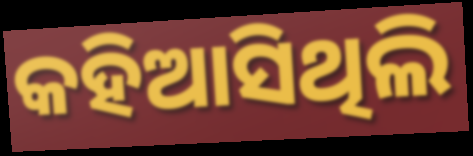
କହିଆସିଥିଲି